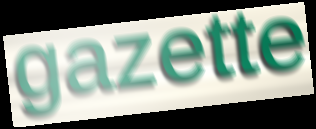
gazette